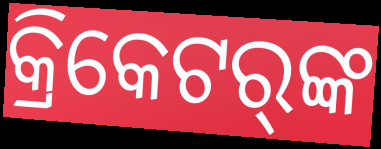
କ୍ରିକେଟର୍‌ଙ୍କ